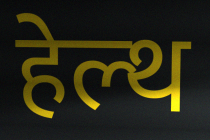
हेल्‍थ